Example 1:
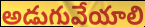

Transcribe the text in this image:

అడుగువేయాలి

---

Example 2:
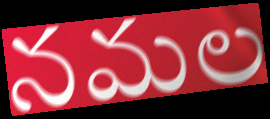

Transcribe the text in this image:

నమల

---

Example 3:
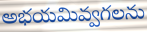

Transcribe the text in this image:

అభయమివ్వగలను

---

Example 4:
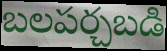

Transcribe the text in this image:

బలపర్చబడి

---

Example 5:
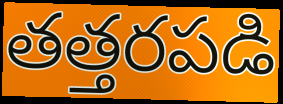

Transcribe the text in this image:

తత్తరపడి